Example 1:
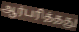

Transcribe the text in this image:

ஆர்பரித்தது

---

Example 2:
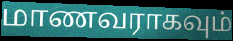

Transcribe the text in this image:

மாணவராகவும்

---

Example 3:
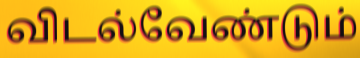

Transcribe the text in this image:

விடல்வேண்டும்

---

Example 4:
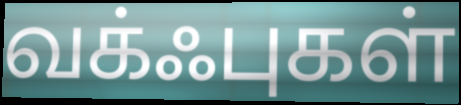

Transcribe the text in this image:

வக்ஃபுகள்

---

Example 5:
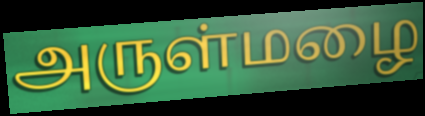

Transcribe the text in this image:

அருள்மழை